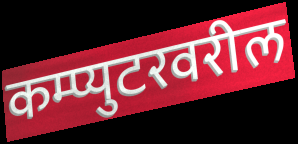
कम्प्युटरवरील